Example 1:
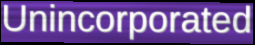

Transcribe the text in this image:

Unincorporated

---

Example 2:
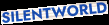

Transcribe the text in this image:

SILENTWORLD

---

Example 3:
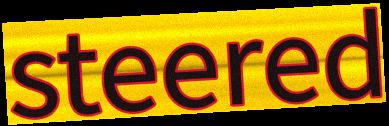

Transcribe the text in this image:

steered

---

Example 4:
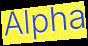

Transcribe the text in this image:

Alpha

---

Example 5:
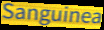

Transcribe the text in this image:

Sanguinea